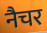
नैचर